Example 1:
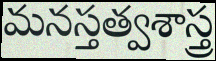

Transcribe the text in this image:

మనస్తత్వశాస్త్ర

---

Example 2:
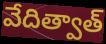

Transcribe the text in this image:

వేదిత్వాత్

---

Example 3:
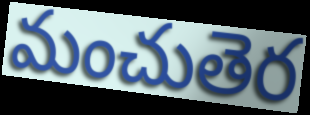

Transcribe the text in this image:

మంచుతెర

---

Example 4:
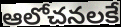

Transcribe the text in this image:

ఆలోచనలకే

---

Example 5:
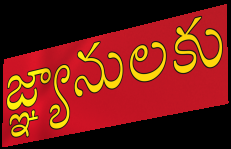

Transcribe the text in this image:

జ్ఞ్యానులకు